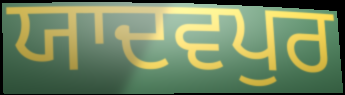
ਯਾਦਵਪੁਰ